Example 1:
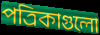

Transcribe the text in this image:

পত্রিকাগুলো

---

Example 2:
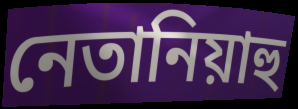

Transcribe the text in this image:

নেতানিয়াহু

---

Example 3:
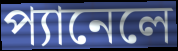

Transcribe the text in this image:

প্যানেলে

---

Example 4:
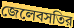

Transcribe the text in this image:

জেলেবসতির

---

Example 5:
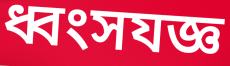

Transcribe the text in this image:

ধ্বংসযজ্ঞ